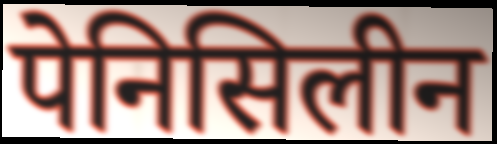
पेनिसिलीन